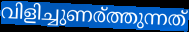
വിളിച്ചുണര്ത്തുന്നത്